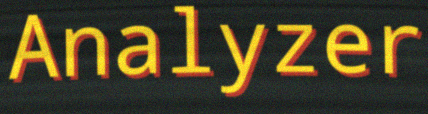
Analyzer